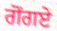
ਗੋਂਗਏ